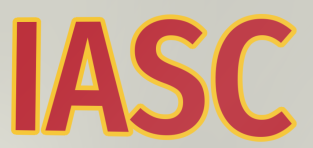
IASC